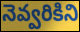
నెవ్వరికిని